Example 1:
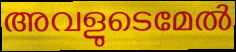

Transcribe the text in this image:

അവളുടെമേൽ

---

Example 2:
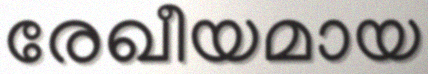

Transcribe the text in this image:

രേഖീയമായ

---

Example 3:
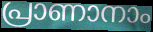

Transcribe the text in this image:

പ്രാണാനാം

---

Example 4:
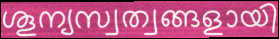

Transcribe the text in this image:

ശൂന്യസ്വത്വങ്ങളായി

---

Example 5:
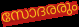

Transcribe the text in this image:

സോദരരും